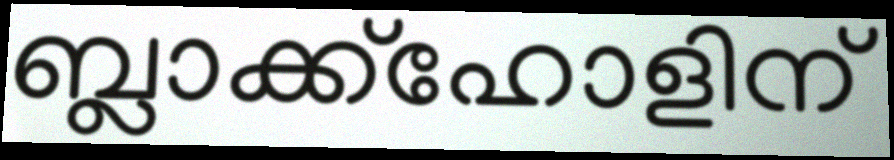
ബ്ലാക്ക്ഹോളിന്